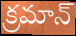
క్రమాన్